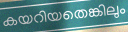
കയറിയതെങ്കിലും